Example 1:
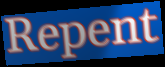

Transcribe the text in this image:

Repent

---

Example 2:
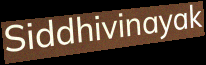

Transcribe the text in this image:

Siddhivinayak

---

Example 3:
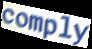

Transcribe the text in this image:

comply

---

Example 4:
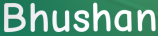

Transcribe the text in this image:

Bhushan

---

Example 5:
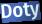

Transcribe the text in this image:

Doty